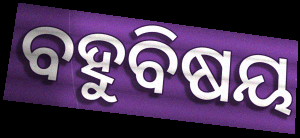
ବହୁବିଷୟ